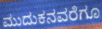
ಮುದುಕನವರೆಗೂ